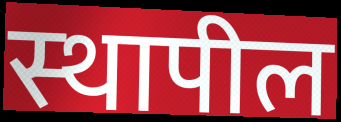
स्थापील